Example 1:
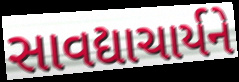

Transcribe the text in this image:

સાવદ્યાચાર્યને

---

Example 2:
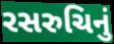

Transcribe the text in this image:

રસરુચિનું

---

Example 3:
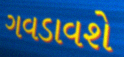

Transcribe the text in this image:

ગવડાવશે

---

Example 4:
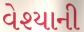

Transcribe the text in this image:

વેશ્યાની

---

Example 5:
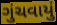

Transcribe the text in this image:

ગુંચવાયું